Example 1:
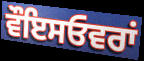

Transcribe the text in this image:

ਵੌਇਸਓਵਰਾਂ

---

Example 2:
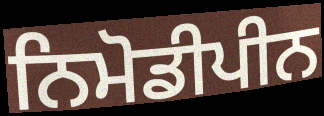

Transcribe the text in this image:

ਨਿਮੋਡੀਪੀਨ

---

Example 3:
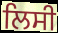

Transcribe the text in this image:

ਲਿਸੀ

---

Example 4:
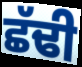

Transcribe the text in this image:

ਛੱਢੀ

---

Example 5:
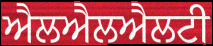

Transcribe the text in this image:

ਐਲਐਲਐਲਟੀ